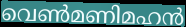
വെൺമണിമഹൻ